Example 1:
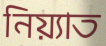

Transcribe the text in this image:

নিয়্যাত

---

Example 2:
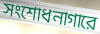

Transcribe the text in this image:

সংশোধনাগারে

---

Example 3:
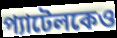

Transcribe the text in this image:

প্যাটেলকেও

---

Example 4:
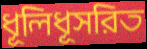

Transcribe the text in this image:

ধূলিধূসরিত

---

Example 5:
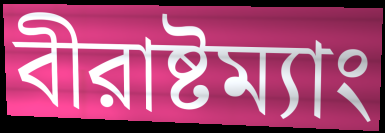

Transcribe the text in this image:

বীরাষ্টম্যাং